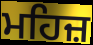
ਮਹਿਜ਼